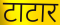
टाटार